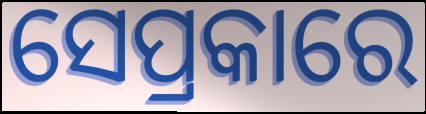
ସେପ୍ରକାରେ